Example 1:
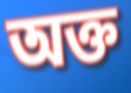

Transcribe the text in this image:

অক্ত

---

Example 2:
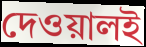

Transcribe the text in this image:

দেওয়ালই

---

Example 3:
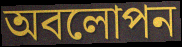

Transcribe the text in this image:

অবলোপন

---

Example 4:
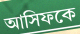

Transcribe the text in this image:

আসিফকে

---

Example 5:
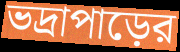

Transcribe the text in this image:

ভদ্রাপাড়ের